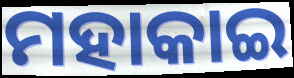
ମହାକାଇ